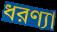
ধরণ্যা